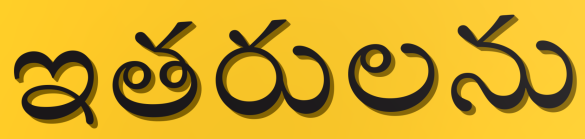
ఇతరులను